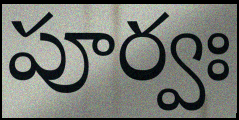
పూర్వః